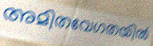
അമിതവേഗതയിൽ